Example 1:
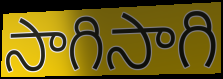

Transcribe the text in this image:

సాగిసాగి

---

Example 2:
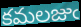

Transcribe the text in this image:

కమలజుఁ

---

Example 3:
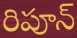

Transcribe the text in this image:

రిపూన్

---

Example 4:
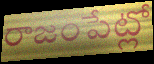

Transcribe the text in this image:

రాజంపేట్లో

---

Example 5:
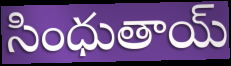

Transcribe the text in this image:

సింధుతాయ్